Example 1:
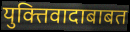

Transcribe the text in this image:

युक्तिवादाबाबत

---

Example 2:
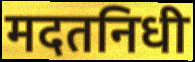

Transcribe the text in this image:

मदतनिधी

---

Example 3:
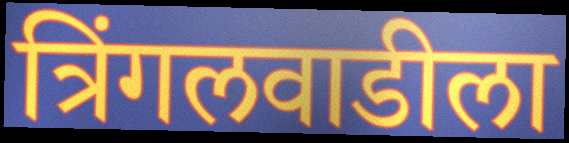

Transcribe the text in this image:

त्रिंगलवाडीला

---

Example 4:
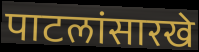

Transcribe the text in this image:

पाटलांसारखे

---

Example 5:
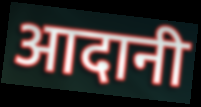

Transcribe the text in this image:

आदानी